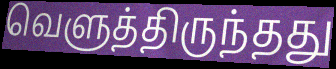
வெளுத்திருந்தது